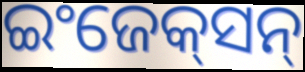
ଇଂଜେକ୍‌ସନ୍